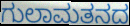
ಗುಲಾಮತನದ